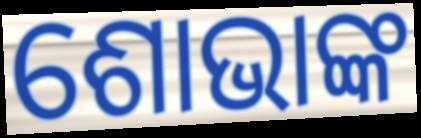
ଶୋଭାଙ୍କ